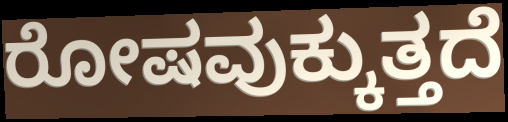
ರೋಷವುಕ್ಕುತ್ತದೆ